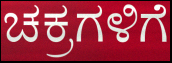
ಚಕ್ರಗಳಿಗೆ